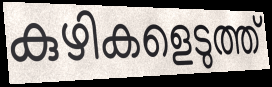
കുഴികളെടുത്ത്